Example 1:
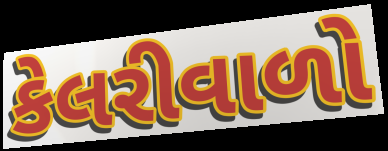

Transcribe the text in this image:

કેલરીવાળો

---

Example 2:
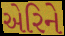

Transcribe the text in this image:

એરિને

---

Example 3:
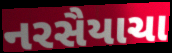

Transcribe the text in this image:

નરસૈયાચા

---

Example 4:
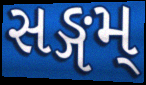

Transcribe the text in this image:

સઙ્ગમ્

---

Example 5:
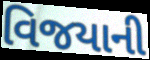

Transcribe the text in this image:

વિજયાની